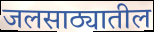
जलसाठ्यातील